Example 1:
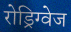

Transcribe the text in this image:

रोड्रिग्वेज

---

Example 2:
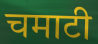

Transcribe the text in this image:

चमाटी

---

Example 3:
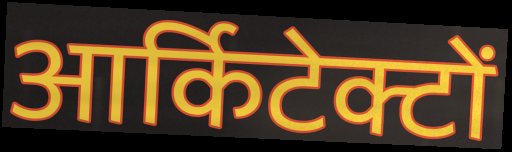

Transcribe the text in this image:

आर्किटेक्टों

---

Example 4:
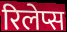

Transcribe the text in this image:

रिलेप्स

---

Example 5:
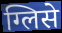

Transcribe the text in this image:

ग्लिसे